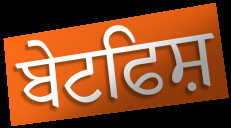
ਬੇਟਫਿਸ਼